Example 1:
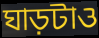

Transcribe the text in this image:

ঘাড়টাও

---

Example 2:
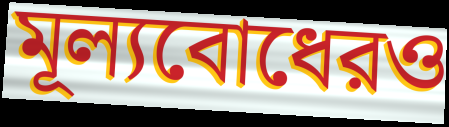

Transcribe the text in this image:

মূল্যবোধেরও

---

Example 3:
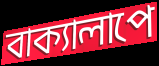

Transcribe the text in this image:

বাক্যালাপে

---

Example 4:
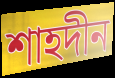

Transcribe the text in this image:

শাহদীন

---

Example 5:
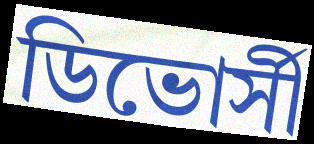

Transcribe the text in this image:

ডিভোর্সী